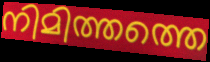
നിമിത്തത്തെ